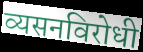
व्यसनविरोधी